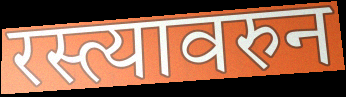
रस्त्यावरुन